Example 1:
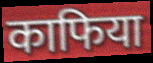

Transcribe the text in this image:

काफिया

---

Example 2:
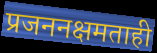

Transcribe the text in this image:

प्रजननक्षमताही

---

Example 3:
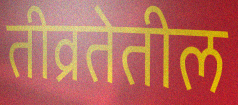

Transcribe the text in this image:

तीव्रतेतील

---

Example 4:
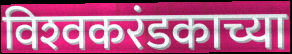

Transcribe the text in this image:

विश्‍वकरंडकाच्या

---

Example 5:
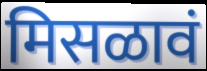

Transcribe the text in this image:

मिसळावं